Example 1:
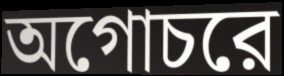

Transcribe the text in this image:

অগোচরে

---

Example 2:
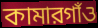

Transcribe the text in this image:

কামারগাঁও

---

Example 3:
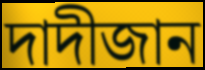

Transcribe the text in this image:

দাদীজান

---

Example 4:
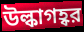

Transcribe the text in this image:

উল্কাগহ্বর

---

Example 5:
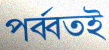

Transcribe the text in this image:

পর্ব্বতই